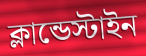
ক্লান্ডেস্টাইন